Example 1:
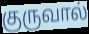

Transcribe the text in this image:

குருவால்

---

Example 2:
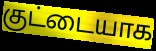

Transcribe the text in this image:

குட்டையாக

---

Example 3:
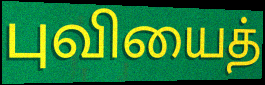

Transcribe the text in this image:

புவியைத்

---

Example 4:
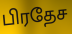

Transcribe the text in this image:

பிரதேச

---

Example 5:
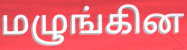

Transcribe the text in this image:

மழுங்கின